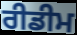
ਰੀਡੀਮ